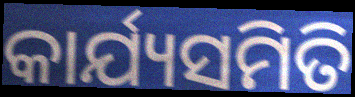
କାର୍ଯ୍ୟସମିତି